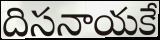
దిసనాయకే